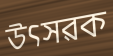
উৎসৱক